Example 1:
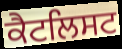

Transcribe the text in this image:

ਕੈਟਲਿਸਟ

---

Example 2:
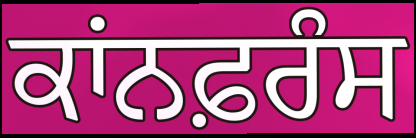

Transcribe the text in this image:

ਕਾਂਨਫ਼ਰੰਸ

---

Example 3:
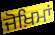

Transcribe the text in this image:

ਜੋਖ਼ਿਮਾਂ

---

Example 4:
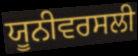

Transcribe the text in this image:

ਯੂਨੀਵਰਸਲੀ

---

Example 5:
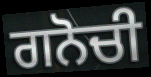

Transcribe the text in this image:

ਗਨੋਚੀ